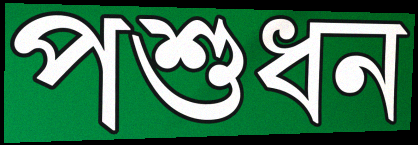
পশুধন